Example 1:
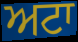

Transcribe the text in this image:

ਅਟਾ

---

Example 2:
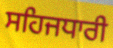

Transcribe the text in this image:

ਸਹਿਜਧਾਰੀ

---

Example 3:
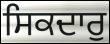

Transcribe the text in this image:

ਸਿਕਦਾਰੁ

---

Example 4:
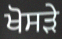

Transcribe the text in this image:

ਖੋਸੜੇ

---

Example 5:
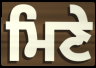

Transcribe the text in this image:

ਮਿਣੇ